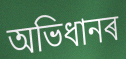
অভিধানৰ